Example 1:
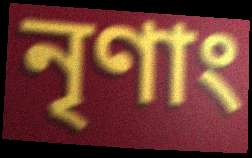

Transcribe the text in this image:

নৃণাং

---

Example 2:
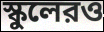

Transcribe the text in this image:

স্কুলেরও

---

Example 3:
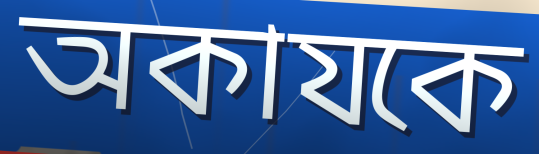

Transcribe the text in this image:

অকাযকে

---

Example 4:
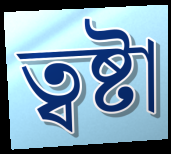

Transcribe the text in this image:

ত্বষ্টা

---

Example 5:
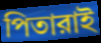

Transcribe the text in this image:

পিতারাই